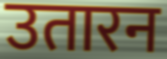
उतारन